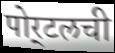
पोर्टलची